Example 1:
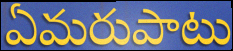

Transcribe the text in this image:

ఏమరుపాటు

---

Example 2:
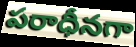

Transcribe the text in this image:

పరాధీనగా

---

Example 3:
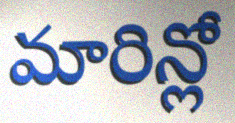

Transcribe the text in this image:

మారిన్లో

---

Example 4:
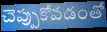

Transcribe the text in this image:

చెప్పుకోవడంతో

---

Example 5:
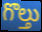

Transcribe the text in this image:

గొల్తు